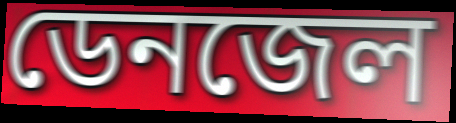
ডেনজেল